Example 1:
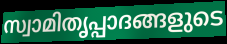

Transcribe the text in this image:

സ്വാമിതൃപ്പാദങ്ങളുടെ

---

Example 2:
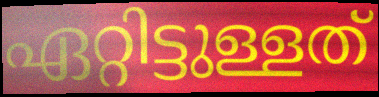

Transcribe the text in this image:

ഏറ്റിട്ടുള്ളത്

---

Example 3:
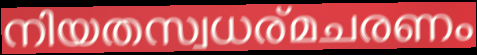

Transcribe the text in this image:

നിയതസ്വധര്മചരണം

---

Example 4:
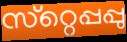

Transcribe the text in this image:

സ്‌റ്റെപ്പപ്പു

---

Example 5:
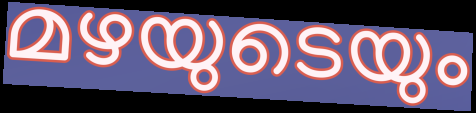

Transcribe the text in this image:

മഴയുടെയും